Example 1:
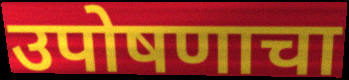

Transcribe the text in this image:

उपोषणाचा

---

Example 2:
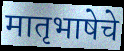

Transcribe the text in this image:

मातृभाषेचे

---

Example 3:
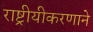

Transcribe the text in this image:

राष्ट्रीयीकरणाने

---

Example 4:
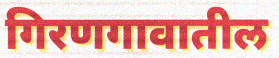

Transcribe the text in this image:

गिरणगावातील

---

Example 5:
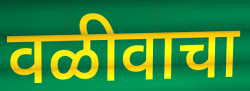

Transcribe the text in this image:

वळीवाचा